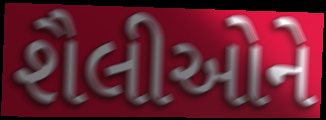
શૈલીઓને